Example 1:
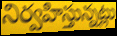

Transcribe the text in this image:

నిర్వహిస్తున్నట్లు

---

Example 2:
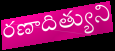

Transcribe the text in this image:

రణాదిత్యుని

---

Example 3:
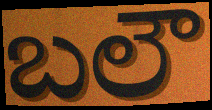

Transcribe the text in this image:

బలౌ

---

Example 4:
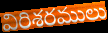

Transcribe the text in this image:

విరిశరములు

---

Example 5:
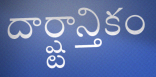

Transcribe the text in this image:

దార్ష్టాన్తికం